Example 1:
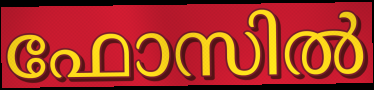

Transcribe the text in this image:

ഫോസിൽ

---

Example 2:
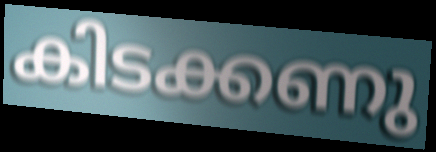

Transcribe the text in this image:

കിടക്കണു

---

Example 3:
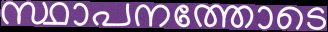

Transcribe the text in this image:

സ്ഥാപനത്തോടെ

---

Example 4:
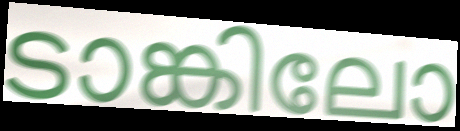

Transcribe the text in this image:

ടാങ്കിലോ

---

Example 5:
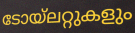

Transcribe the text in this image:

ടോയ്ലറ്റുകളും